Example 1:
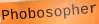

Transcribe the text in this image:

Phobosopher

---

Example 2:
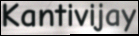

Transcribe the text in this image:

Kantivijay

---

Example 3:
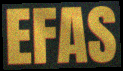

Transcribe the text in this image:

EFAS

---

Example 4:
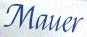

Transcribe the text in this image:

Mauer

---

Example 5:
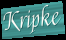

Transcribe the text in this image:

Kripke